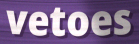
vetoes